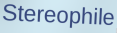
Stereophile